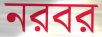
নরবর